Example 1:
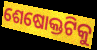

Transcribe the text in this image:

ଶେଷୋକ୍ତଟିକୁ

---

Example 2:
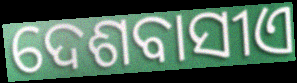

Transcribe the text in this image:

ଦେଶବାସୀଏ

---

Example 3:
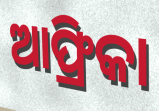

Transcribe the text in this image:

ଆଫ୍ରିକା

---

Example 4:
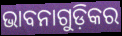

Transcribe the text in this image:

ଭାବନାଗୁଡ଼ିକର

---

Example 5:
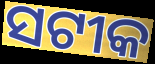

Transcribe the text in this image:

ସଟୀକ